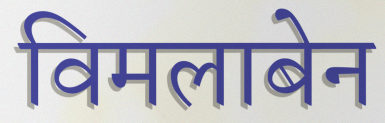
विमलाबेन